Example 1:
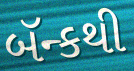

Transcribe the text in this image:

બૅન્કથી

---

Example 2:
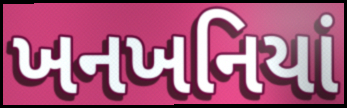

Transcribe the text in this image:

ખનખનિયાં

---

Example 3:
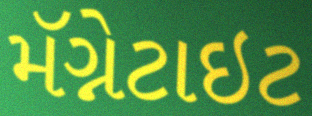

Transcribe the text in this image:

મૅગ્નેટાઇટ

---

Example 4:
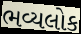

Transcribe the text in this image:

ભવ્યલોક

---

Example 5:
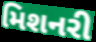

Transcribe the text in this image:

મિશનરી